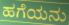
ಹಗೆಯನು